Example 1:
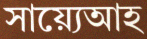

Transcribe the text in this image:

সায়্যেআহ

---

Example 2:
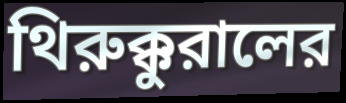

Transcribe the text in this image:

থিরুক্কুরালের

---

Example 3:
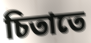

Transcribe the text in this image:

চিতাতে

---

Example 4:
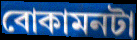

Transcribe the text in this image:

বোকামনটা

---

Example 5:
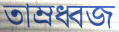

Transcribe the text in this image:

তাম্রধ্বজ